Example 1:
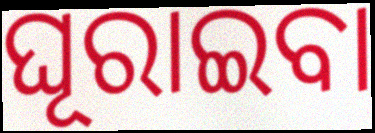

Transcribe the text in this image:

ଘୂରାଇବା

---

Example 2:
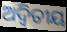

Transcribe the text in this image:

ଅଦ୍ବିତୀୟ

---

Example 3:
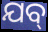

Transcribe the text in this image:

ଯବ୍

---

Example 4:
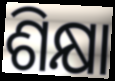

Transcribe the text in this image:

ଶିକ୍ଷା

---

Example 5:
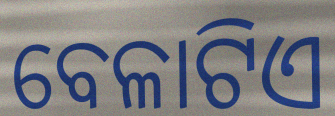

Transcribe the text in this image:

ବେଳାଟିଏ